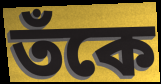
তঁকে